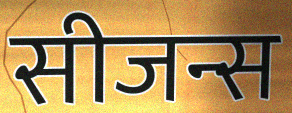
सीजन्स